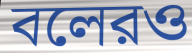
বলেরও